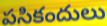
పసికందులు